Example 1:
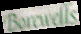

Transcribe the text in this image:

Borewells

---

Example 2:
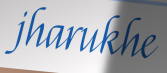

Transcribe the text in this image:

jharukhe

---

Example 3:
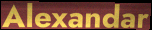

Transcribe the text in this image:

Alexandar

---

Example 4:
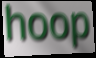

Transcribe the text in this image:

hoop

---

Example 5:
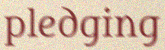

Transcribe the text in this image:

pledging